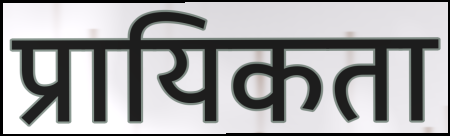
प्रायिकता